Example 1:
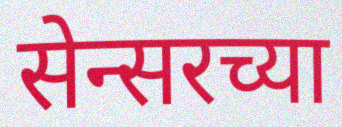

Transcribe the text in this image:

सेन्सरच्या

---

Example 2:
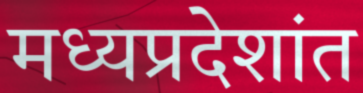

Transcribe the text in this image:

मध्यप्रदेशांत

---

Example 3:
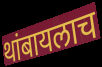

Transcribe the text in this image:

थांबायलाच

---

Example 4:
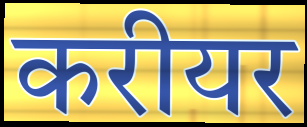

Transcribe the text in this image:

करीयर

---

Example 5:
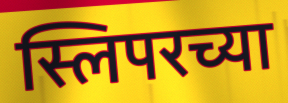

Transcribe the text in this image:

स्लिपरच्या